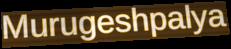
Murugeshpalya